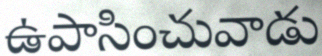
ఉపాసించువాడు